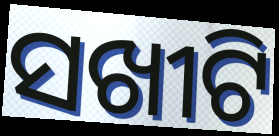
ସଖୀଟି